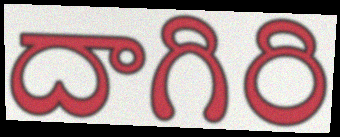
దాగిరి